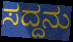
ಸದ್ದನು